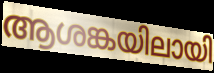
ആശങ്കയിലായി